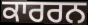
ਕਾਰਰਨ